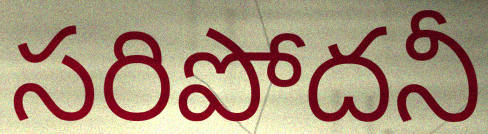
సరిపోదనీ